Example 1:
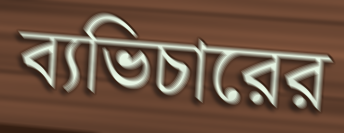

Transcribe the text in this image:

ব্যভিচারের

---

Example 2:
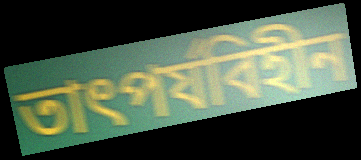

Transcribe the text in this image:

তাৎপর্যবিহীন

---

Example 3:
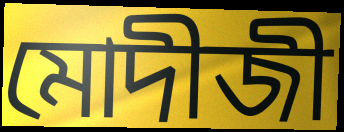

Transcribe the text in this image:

মোদীজী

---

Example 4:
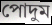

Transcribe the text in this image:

পোদুম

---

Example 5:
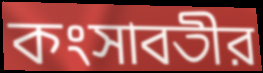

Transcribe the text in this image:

কংসাবতীর